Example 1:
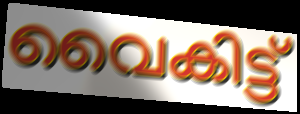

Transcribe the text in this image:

വൈകിട്ട്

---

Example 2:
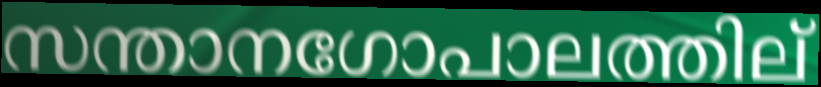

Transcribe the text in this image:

സന്താനഗോപാലത്തില്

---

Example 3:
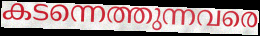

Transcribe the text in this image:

കടന്നെത്തുന്നവരെ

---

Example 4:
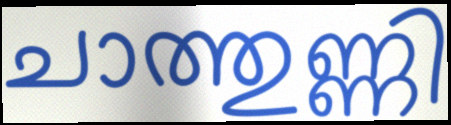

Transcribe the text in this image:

ചാത്തുണ്ണി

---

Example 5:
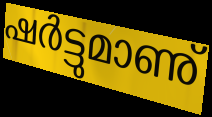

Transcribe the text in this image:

ഷർട്ടുമാണു്